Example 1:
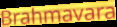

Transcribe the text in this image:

Brahmavara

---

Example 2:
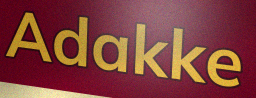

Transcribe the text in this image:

Adakke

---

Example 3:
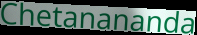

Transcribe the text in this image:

Chetanananda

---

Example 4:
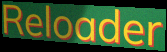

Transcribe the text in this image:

Reloader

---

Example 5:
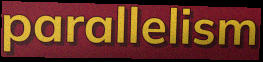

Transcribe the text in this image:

parallelism